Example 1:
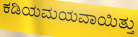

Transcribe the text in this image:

ಕಡಿಯಮಯವಾಯಿತ್ತು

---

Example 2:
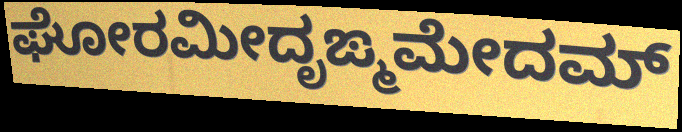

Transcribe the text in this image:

ಘೋರಮೀದೃಙ್ಮಮೇದಮ್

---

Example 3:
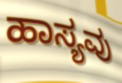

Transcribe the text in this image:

ಹಾಸ್ಯವು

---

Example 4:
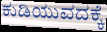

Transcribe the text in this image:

ಕುಡಿಯುವದಕ್ಕೆ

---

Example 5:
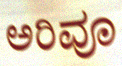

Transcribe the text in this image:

ಅರಿವೂ